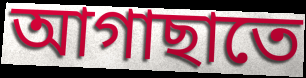
আগাছাতে